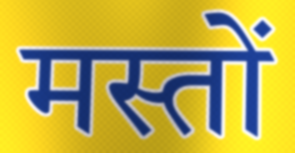
मस्तों